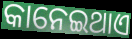
କାନେଇଥାଏ